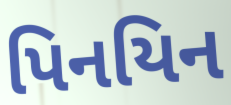
પિનયિન